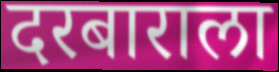
दरबाराला